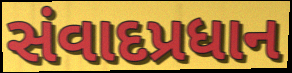
સંવાદપ્રધાન